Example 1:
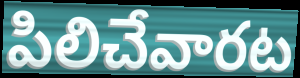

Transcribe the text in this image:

పిలిచేవారట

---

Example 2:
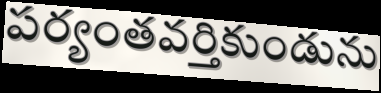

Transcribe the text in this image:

పర్యంతవర్తికుండును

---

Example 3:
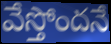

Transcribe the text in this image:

వేస్తోందనే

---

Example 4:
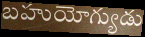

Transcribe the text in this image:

బహుయోగ్యుడు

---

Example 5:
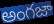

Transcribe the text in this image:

అంగజా